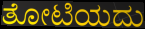
ತೋಟಿಯದು